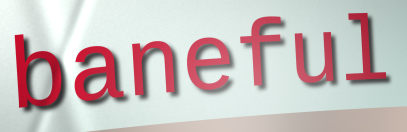
baneful